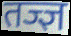
तज्‍ज्ञ